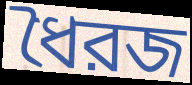
ধৈরজ